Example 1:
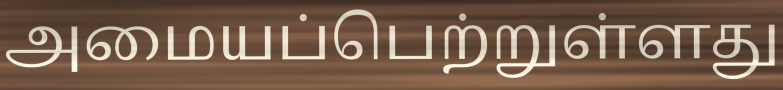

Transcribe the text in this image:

அமையப்பெற்றுள்ளது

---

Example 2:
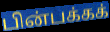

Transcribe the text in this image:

பின்பக்கக்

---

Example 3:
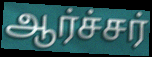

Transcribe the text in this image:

ஆர்ச்சர்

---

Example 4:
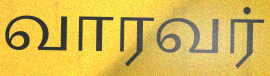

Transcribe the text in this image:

வாரவர்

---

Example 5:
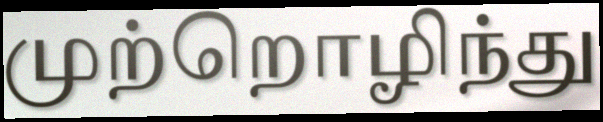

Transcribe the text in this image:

முற்றொழிந்து